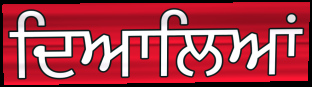
ਦਿਆਲਿਆਂ